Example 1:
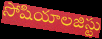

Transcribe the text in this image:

సోషియాలజిస్టు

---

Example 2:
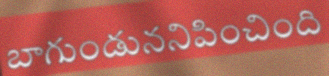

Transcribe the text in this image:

బాగుండుననిపించింది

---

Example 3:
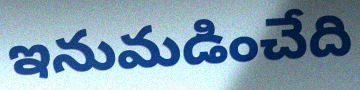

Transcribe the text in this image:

ఇనుమడించేది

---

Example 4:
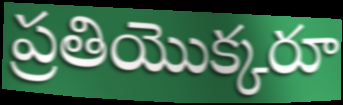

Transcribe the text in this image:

ప్రతియొక్కరూ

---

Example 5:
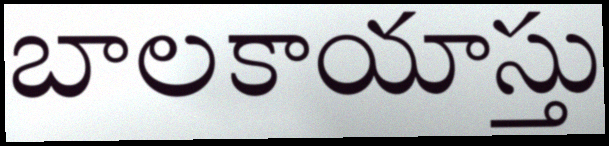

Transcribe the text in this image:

బాలకాయాస్తు